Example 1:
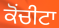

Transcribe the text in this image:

ਕੋਂਚੀਟਾ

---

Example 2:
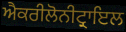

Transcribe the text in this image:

ਐਕਰੀਲੋਨੀਟ੍ਰਾਇਲ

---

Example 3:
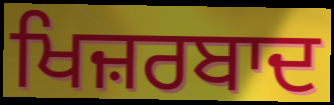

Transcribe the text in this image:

ਖਿਜ਼ਰਬਾਦ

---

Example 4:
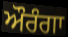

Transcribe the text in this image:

ਔਰੰਗਾ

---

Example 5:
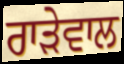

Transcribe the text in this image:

ਰਾੜੇਵਾਲ